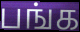
பங்க